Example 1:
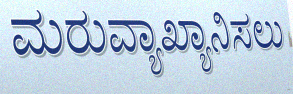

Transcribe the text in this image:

ಮರುವ್ಯಾಖ್ಯಾನಿಸಲು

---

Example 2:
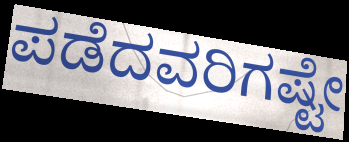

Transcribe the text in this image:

ಪಡೆದವರಿಗಷ್ಟೇ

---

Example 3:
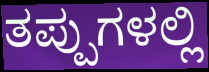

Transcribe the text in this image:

ತಪ್ಪುಗಳಲ್ಲಿ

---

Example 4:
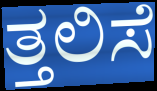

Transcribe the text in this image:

ತ್ತಲಿಸೆ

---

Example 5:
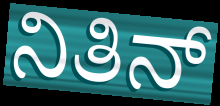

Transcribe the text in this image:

ನಿತಿನ್